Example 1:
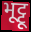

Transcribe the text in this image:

भूट्टू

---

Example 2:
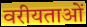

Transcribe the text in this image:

वरीयताओं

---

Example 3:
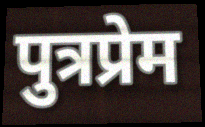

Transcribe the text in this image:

पुत्रप्रेम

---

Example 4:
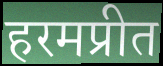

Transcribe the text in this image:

हरमप्रीत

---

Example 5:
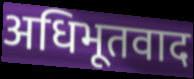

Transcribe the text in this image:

अधिभूतवाद